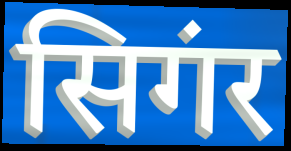
सिगंर